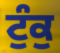
ਟੁੰਕੁ